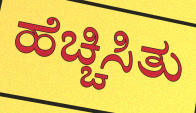
ಹೆಚ್ಚಿಸಿತು